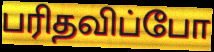
பரிதவிப்போ